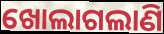
ଖୋଲାଗଲାଣି